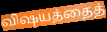
விஷயத்தைத்